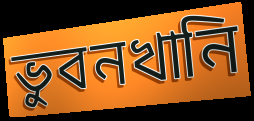
ভুবনখানি